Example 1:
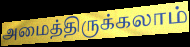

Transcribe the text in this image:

அமைத்திருக்கலாம்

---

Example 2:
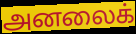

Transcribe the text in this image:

அனலைக்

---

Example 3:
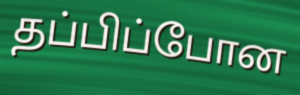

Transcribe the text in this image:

தப்பிப்போன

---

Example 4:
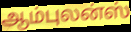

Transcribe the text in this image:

ஆம்புலன்ஸ்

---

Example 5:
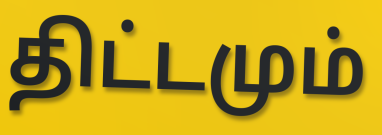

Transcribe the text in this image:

திட்டமும்